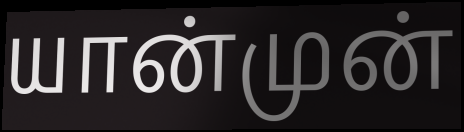
யான்முன்